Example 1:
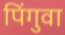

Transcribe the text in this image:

पिंगुवा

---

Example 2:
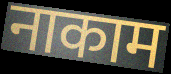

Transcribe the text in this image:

नाकाम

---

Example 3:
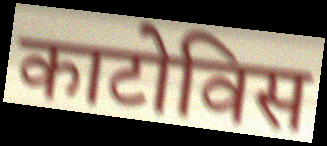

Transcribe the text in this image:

काटोविस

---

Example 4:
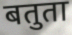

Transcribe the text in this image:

बतुता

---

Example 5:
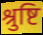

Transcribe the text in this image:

श्रुष्टि